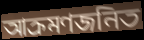
আক্রমণজনিত